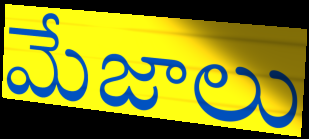
మేజాలు